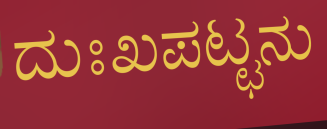
ದುಃಖಪಟ್ಟನು